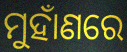
ମୁହାଁଣରେ